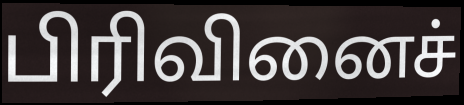
பிரிவினைச்